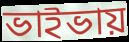
ভাইভায়